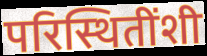
परिस्थितींशी